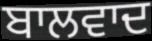
ਬਾਲਵਾਦ